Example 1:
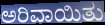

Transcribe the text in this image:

ಅರಿವಾಯಿತು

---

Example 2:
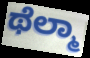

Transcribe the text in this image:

ಥೆಲ್ಮಾ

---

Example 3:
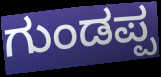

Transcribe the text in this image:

ಗುಂಡಪ್ಪ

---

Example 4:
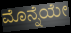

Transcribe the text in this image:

ಮೊನ್ನೆಯೇ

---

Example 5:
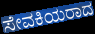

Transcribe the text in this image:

ಸೇವಕಿಯರಾದ